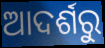
ଆଦର୍ଶରୁ